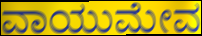
ವಾಯುಮೇವ